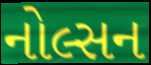
નોલ્સન